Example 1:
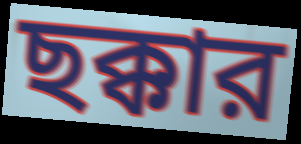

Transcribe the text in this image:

ছক্কার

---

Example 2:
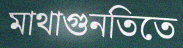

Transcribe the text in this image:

মাথাগুনতিতে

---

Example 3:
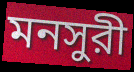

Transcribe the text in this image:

মনসুরী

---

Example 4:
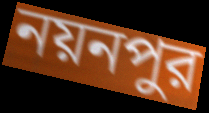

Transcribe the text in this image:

নয়নপুর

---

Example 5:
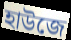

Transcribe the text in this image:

হাউজে